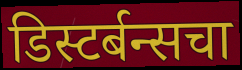
डिस्टर्बन्सचा